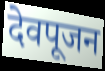
देवपूजन